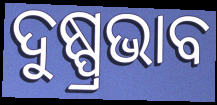
ଦୁଷ୍ପ୍ରଭାବ